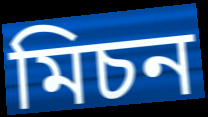
মিচন